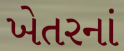
ખેતરનાં